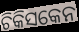
ଚିକିସକେନ